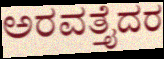
ಅರವತ್ತೈದರ